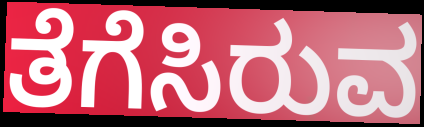
ತೆಗೆಸಿರುವ